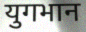
युगभान